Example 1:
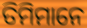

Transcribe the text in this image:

ତିମିମାନେ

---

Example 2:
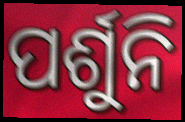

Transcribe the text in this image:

ପର୍ଶୁନି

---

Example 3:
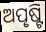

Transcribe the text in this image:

ଅପୃଷ୍ଟି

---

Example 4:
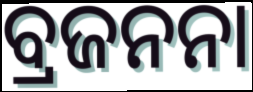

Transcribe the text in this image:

ବ୍ରଜନନା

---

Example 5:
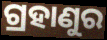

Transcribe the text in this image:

ଗ୍ରହାଣୁର